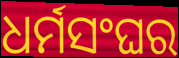
ଧର୍ମସଂଘର